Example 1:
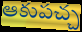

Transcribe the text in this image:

ఆకుపచ్చ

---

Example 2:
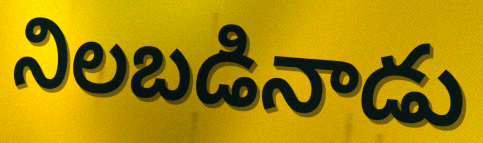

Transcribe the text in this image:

నిలబడినాడు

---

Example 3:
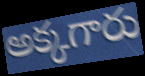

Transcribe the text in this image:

అక్కగారు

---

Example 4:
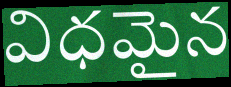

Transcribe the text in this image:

విధమైన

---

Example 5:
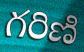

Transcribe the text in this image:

గరిణి